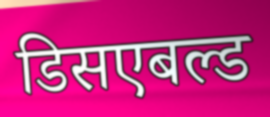
डिसएबल्ड